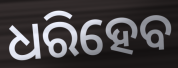
ଧରିହେବ